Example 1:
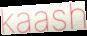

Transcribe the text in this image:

kaash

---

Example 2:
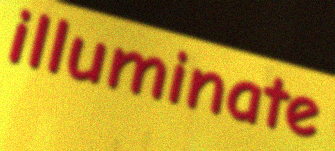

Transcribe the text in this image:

illuminate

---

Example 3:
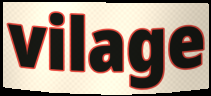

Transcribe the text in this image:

vilage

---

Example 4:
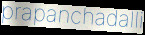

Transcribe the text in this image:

prapanchadalli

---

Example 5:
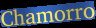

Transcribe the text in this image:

Chamorro